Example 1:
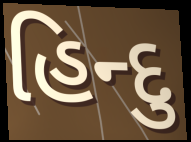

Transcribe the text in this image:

હિન્દુ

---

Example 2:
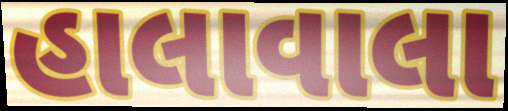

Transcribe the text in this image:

હાલાવાલા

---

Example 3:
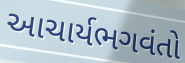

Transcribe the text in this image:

આચાર્યભગવંતો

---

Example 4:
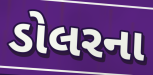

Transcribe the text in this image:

ડોલરના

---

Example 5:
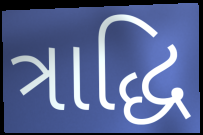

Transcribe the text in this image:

ત્રાદ્ધિ